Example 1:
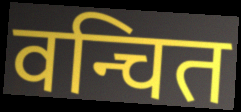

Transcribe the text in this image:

वन्चित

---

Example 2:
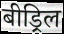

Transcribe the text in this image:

बीड्रिल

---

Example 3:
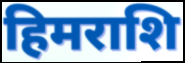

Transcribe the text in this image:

हिमराशि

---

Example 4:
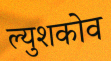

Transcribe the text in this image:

ल्युशकोव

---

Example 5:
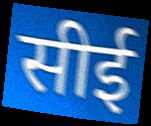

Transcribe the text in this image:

सीई